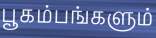
பூகம்பங்களும்